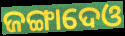
ଜଙ୍ଗାଦେଓ